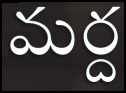
మర్ద